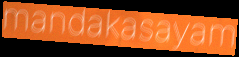
mandakasayam